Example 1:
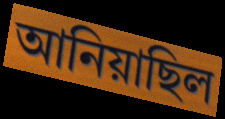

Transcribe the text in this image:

আনিয়াছিল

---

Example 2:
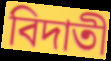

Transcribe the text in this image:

বিদাতী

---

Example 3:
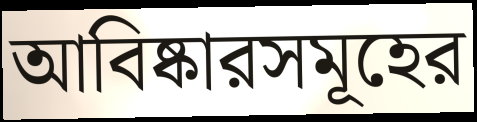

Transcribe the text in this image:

আবিষ্কারসমূহের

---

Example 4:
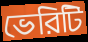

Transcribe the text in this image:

ভেরিটি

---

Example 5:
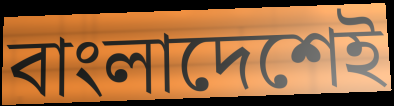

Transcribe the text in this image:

বাংলাদেশেই